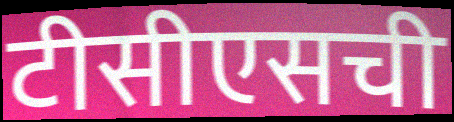
टीसीएसची